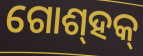
ଗୋଶ୍‍ହକ୍